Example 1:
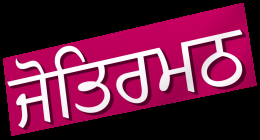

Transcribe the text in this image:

ਜੋਤਿਰਮਠ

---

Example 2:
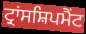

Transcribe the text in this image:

ਟ੍ਰਾਂਸਸ਼ਿਪਮੈਂਟ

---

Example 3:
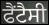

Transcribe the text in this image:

ਫੈਂਟੈਸੀ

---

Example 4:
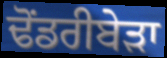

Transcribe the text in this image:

ਢੋਂਡਰੀਬੇੜਾ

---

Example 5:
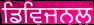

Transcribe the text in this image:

ਡਿਵਿਜਨਲ